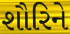
શૌરિને